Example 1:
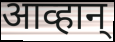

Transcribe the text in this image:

आव्हान्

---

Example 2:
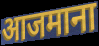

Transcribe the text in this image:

आजमाना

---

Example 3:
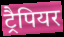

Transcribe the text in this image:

ट्रैपियर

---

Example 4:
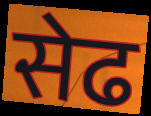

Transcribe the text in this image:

सेढ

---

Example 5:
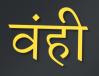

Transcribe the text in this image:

वंही